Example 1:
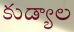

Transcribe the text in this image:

కుడ్యాల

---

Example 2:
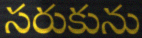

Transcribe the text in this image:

సరుకును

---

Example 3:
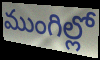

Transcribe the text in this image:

ముంగిల్లో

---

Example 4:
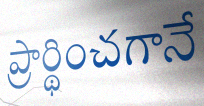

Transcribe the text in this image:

ప్రార్థించగానే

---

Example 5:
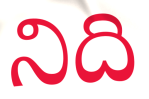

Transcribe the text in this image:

నిది